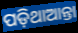
ପଡ଼ିଥାଆନ୍ତା